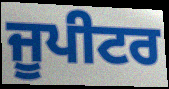
ਜੂਪੀਟਰ